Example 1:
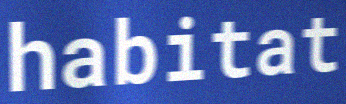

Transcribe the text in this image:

habitat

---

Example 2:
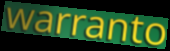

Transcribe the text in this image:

warranto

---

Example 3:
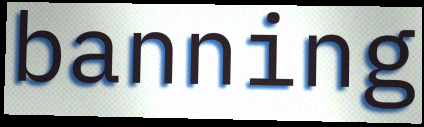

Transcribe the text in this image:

banning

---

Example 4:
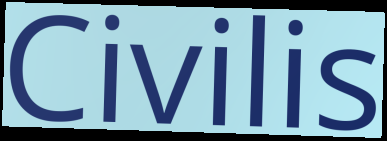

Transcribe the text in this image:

Civilis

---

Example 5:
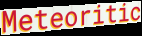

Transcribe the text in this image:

Meteoritic